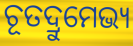
ଚୂତଦ୍ରୁମେଭ୍ୟ